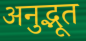
अनुद्भूत